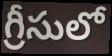
గ్రీసులో